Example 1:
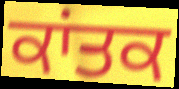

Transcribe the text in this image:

ਕਾਂਤਕ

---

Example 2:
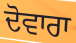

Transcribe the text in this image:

ਦੋਵਾਰਾ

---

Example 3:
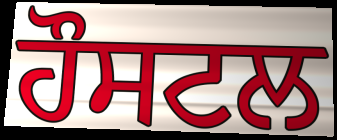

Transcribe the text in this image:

ਹੌਸਟਲ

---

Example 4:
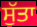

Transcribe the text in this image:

ਸੁੱਤਾ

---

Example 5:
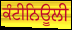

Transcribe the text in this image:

ਕੰਟੀਨਿਊਲੀ